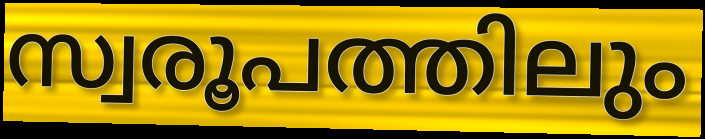
സ്വരൂപത്തിലും